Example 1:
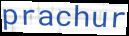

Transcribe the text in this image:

prachur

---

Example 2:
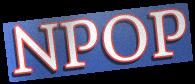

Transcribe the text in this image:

NPOP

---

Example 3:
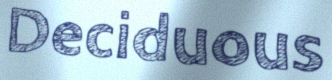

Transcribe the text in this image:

Deciduous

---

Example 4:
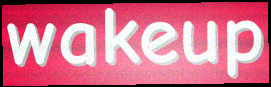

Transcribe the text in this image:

wakeup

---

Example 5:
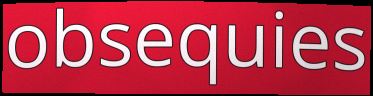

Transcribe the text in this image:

obsequies